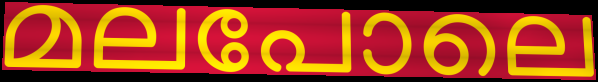
മലപോലെ